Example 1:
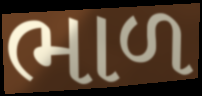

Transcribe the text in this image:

ભાળ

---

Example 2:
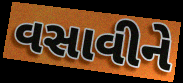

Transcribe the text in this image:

વસાવીને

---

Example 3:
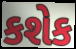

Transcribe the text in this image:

કશેક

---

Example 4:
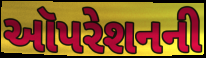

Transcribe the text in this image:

ઑપરેશનની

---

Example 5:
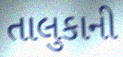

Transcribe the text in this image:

તાલુકાની